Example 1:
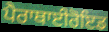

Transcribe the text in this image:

ਪੈਰਾਥਾਈਰੋਇਡ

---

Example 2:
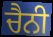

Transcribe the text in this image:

ਚੈਨੀ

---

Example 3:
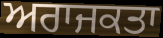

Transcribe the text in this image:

ਅਰਾਜਕਤਾ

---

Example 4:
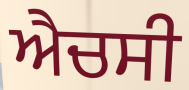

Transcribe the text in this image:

ਐਚਸੀ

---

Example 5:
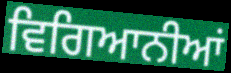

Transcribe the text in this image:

ਵਿਗਿਆਨੀਆਂ